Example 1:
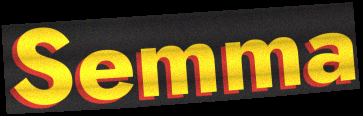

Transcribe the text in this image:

Semma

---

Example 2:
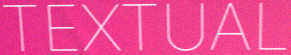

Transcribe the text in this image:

TEXTUAL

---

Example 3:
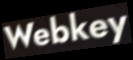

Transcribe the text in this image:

Webkey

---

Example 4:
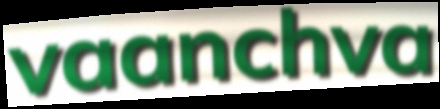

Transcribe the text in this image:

vaanchva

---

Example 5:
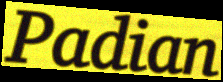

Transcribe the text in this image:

Padian